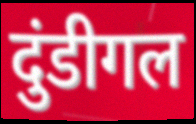
दुंडीगल